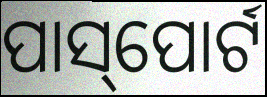
ପାସ୍‌ପୋର୍ଟ